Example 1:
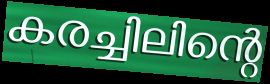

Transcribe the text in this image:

കരച്ചിലിന്റെ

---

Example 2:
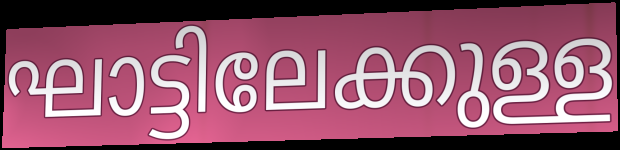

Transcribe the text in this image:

ഘാട്ടിലേക്കുള്ള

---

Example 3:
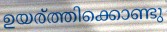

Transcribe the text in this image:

ഉയര്ത്തിക്കൊണ്ടു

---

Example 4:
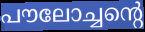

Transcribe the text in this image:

പൗലോച്ചന്റെ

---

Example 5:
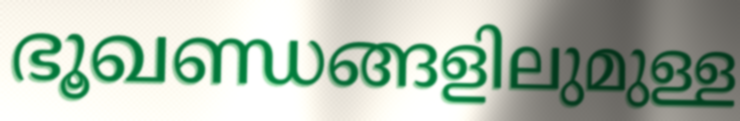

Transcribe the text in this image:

ഭൂഖണ്ഡങ്ങളിലുമുള്ള